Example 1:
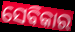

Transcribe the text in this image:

ସେବିକାର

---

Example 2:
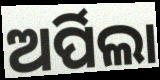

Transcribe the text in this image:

ଅର୍ପିଲା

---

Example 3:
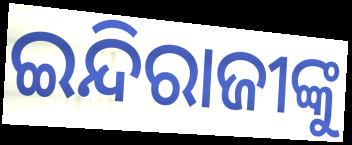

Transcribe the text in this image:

ଇନ୍ଦିରାଜୀଙ୍କୁ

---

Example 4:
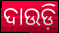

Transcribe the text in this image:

ଦାଉଡ଼ି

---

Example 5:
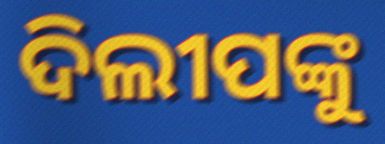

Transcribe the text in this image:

ଦିଲୀପଙ୍କୁ